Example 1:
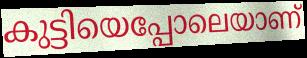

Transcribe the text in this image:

കുട്ടിയെപ്പോലെയാണ്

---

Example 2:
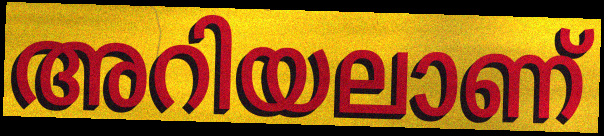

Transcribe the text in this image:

അറിയലാണ്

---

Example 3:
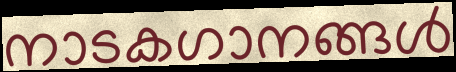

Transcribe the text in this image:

നാടകഗാനങ്ങൾ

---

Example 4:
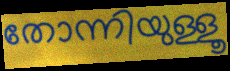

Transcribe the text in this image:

തോന്നിയുള്ളൂ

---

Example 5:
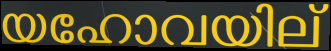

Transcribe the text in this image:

യഹോവയില്